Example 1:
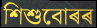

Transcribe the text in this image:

শিশুবোৰৰ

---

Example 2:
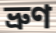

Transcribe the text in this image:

ভ্ৰুণ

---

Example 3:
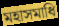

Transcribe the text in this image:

মহাসমাধি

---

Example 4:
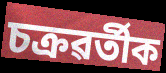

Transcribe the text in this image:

চক্ৰৱৰ্তীক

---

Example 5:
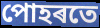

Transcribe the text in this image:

পোহৰতে